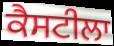
ਕੈਸਟੀਲਾ